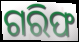
ଗରିଫ